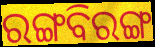
ରଙ୍ଗବିରଙ୍ଗ